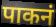
पाकनं